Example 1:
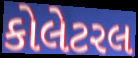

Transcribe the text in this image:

કોલેટરલ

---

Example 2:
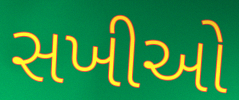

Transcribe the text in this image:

સખીઓ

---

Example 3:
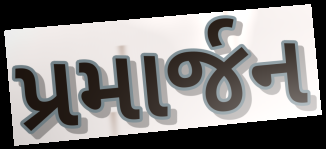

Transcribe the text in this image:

પ્રમાર્જન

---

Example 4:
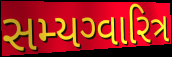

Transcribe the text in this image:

સમ્યગ્વારિત્ર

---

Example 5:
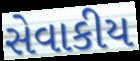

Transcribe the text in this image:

સેવાકીય